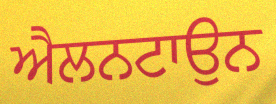
ਐਲਨਟਾਉਨ